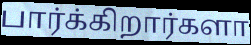
பார்க்கிறார்களா